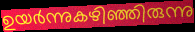
ഉയർന്നുകഴിഞ്ഞിരുന്നു